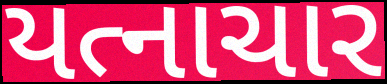
યત્નાચાર